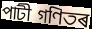
পাটীগণিতৰ